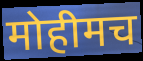
मोहीमच